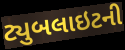
ટ્યુબલાઇટની